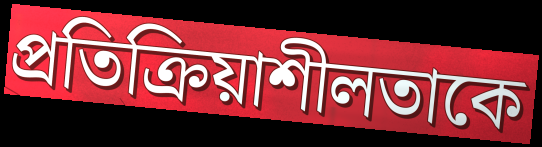
প্রতিক্রিয়াশীলতাকে